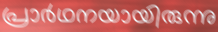
പ്രാർഥനയായിരുന്നു